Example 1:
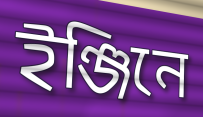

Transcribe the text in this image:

ইঞ্জিনে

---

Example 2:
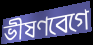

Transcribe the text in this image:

ভীষণবেগে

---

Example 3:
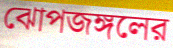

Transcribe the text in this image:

ঝোপজঙ্গলের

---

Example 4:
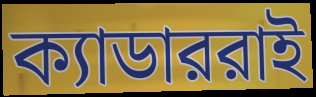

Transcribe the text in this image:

ক্যাডাররাই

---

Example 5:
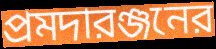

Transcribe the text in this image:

প্রমদারঞ্জনের